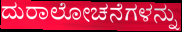
ದುರಾಲೋಚನೆಗಳನ್ನು